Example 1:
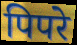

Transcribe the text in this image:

पिपरे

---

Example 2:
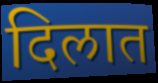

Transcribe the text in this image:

दिलात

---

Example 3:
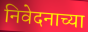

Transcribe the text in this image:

निवेदनाच्या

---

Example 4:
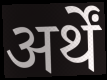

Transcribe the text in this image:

अर्थें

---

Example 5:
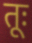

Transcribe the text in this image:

तूः